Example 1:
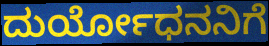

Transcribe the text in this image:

ದುರ್ಯೋಧನನಿಗೆ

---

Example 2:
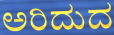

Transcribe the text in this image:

ಅರಿದುದ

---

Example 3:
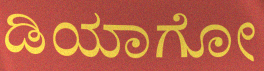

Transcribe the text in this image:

ಡಿಯಾಗೋ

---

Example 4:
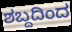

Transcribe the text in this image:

ಶಬ್ದದಿಂದ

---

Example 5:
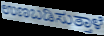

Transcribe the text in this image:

ಉಣಬಡಿಸುತ್ತಾಳೆ